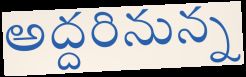
అద్దరినున్న